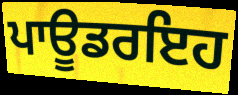
ਪਾਊਡਰਇਹ